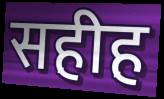
सह़ीह़